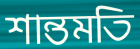
শান্তমতি